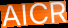
AICR